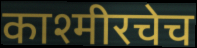
काश्मीरचेच